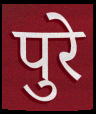
पुरे